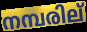
നമ്പരില്